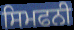
ਸਿਮਫਨੀ